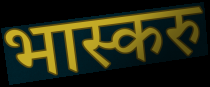
भास्करु